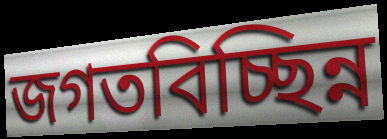
জগতবিচ্ছিন্ন